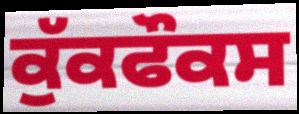
ਕੁੱਕਫੌਕਸ